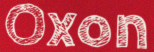
Oxon